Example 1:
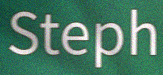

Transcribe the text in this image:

Steph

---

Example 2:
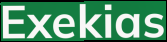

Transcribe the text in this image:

Exekias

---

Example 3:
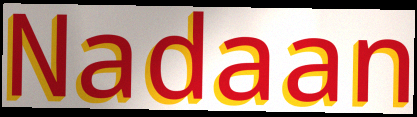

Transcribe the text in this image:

Nadaan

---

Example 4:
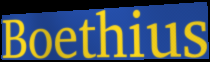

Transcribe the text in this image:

Boethius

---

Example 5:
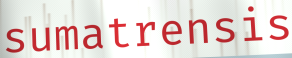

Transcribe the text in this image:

sumatrensis